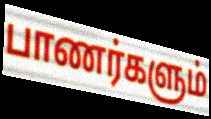
பாணர்களும்